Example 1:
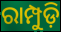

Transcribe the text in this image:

ରାମ୍ପୁଡ଼ି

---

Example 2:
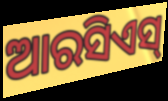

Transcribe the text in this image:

ଆରସିଏସ୍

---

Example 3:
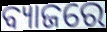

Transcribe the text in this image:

ବ୍ୟାଜରେ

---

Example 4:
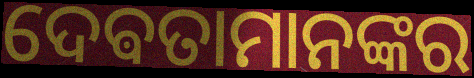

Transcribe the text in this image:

ଦେଵତାମାନଙ୍କର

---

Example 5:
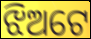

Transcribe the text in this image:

ଝିଅଟେ